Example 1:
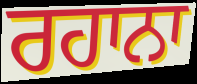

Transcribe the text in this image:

ਰਹਾਨਾ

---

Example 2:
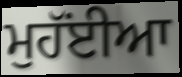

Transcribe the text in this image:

ਮੁਹੱਂਈਆ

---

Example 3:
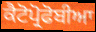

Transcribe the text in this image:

ਕੈਟੋਪ੍ਰੋਫੋਬੀਆ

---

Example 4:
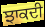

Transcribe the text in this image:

ਝਾਕਦੀ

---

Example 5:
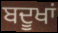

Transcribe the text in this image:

ਬਦੂਖਾਂ